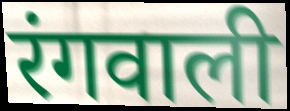
रंगवाली